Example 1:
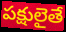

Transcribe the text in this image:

పక్షులైతే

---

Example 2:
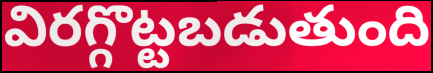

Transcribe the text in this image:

విరగ్గొట్టబడుతుంది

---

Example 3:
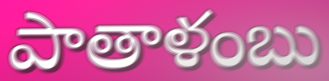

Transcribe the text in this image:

పాతాళంబు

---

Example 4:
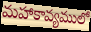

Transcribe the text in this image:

మహాకావ్యములో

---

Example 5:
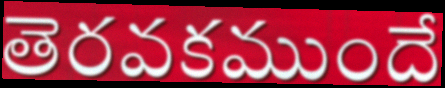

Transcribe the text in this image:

తెరవకముందే